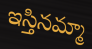
ఇస్తినమ్మా